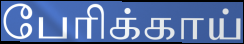
பேரிக்காய்